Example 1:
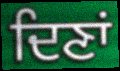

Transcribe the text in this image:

ਦਿਣਾਂ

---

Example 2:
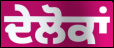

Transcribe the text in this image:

ਦੇਲੋਕਾਂ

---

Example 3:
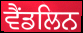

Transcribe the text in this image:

ਵੈਂਡਲਿਨ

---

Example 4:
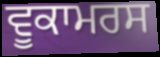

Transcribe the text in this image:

ਵੂਕਾਮਰਸ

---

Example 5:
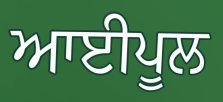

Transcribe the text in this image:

ਆਈਪੂਲ